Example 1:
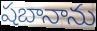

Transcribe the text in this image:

షబానాను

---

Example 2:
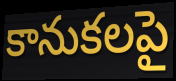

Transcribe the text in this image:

కానుకలపై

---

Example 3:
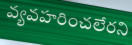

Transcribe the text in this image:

వ్యవహరించలేరని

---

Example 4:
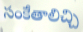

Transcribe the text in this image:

సంకేతాలిచ్చి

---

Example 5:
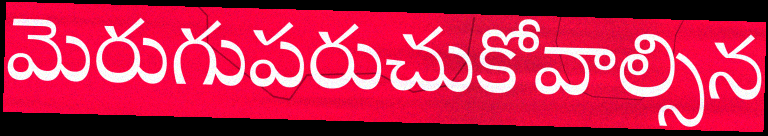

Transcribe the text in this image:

మెరుగుపరుచుకోవాల్సిన